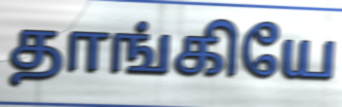
தாங்கியே